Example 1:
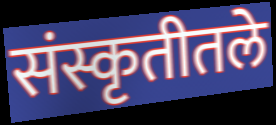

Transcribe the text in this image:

संस्कृतीतले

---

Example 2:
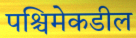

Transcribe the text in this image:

पश्चिमेकडील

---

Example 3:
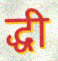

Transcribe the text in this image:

द्धी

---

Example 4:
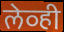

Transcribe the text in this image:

लेव्ही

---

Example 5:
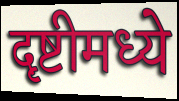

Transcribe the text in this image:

दृष्टीमध्ये